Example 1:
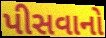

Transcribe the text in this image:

પીસવાનો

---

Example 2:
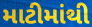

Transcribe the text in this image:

માટીમાંથી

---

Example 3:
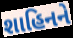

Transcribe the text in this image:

શાહિનને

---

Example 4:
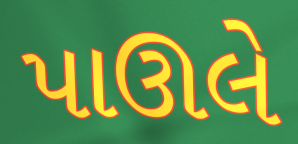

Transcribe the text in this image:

પાઊલે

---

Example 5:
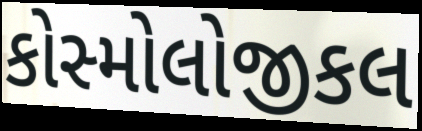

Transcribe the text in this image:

કોસ્મોલોજીકલ